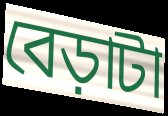
বেড়াটা